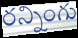
రన్నింగు